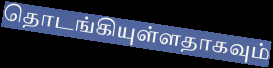
தொடங்கியுள்ளதாகவும்